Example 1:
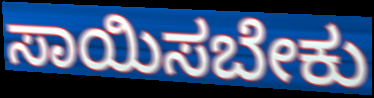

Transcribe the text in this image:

ಸಾಯಿಸಬೇಕು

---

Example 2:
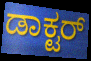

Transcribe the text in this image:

ಡಾಕ್ಟರ್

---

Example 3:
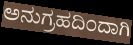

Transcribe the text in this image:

ಅನುಗ್ರಹದಿಂದಾಗಿ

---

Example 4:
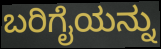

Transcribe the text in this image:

ಬರಿಗೈಯನ್ನು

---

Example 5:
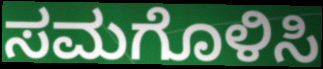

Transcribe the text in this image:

ಸಮಗೊಳಿಸಿ